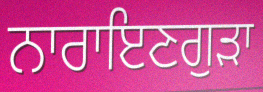
ਨਾਰਾਇਣਗੁੜਾ